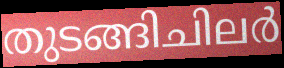
തുടങ്ങിചിലർ